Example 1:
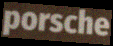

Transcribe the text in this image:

porsche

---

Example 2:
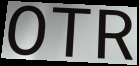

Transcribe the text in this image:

OTR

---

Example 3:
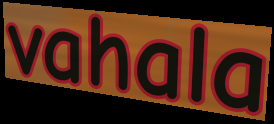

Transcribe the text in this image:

vahala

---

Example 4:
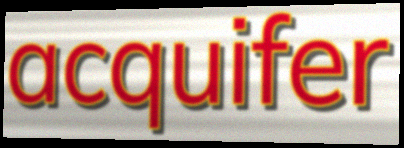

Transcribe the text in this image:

acquifer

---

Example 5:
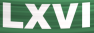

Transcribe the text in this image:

LXVI